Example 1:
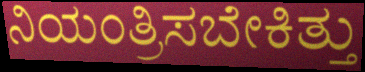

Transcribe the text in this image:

ನಿಯಂತ್ರಿಸಬೇಕಿತ್ತು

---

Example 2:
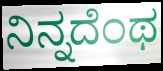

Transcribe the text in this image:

ನಿನ್ನದೆಂಥ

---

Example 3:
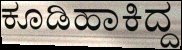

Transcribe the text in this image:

ಕೂಡಿಹಾಕಿದ್ದ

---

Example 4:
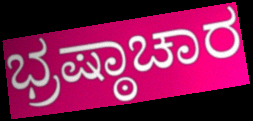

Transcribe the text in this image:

ಭ್ರಷ್ಠಾಚಾರ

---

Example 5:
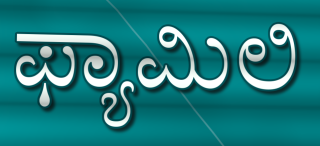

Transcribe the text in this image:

ಫ್ಯಾಮಿಲಿ